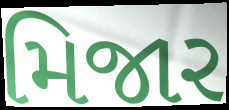
મિજાર